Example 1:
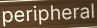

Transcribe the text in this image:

peripheral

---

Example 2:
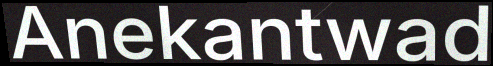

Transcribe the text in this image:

Anekantwad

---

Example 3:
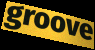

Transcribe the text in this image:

groove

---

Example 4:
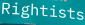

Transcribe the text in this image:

Rightists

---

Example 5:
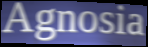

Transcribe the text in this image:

Agnosia